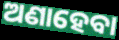
ଅଣାହେବା